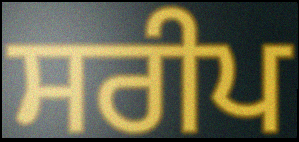
ਸਰੀਪ